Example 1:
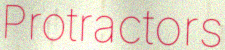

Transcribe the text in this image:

Protractors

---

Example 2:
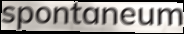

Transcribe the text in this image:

spontaneum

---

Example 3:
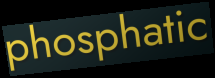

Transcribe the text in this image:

phosphatic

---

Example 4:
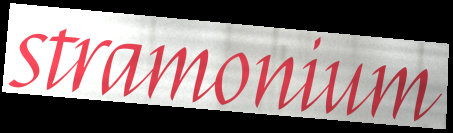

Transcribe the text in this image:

stramonium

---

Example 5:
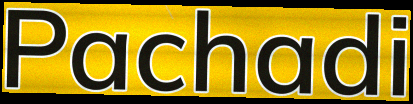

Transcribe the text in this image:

Pachadi